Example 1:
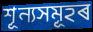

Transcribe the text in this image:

শূন্যসমূহৰ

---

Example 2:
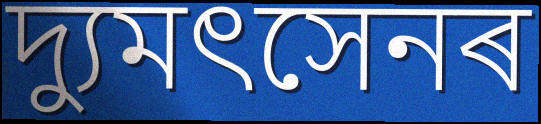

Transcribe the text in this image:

দ্যুমৎসেনৰ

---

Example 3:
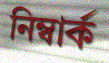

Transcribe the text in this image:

নিম্বাৰ্ক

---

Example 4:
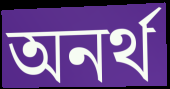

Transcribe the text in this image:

অনৰ্থ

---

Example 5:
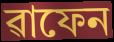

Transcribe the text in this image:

ৱাফেন